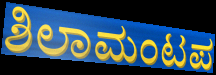
ಶಿಲಾಮಂಟಪ